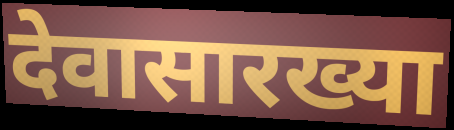
देवासारख्या